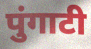
पुंगाटी